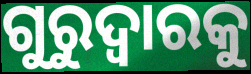
ଗୁରୁଦ୍ୱାରକୁ